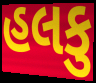
હલકુ